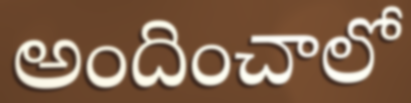
అందించాలో